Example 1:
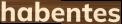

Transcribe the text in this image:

habentes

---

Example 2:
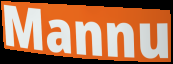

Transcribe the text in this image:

Mannu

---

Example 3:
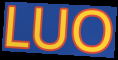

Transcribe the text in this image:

LUO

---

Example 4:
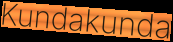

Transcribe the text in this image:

Kundakunda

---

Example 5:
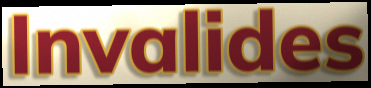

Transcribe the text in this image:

Invalides